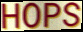
HOPS